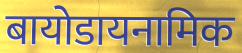
बायोडायनामिक